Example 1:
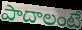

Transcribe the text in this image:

పాదాలంటే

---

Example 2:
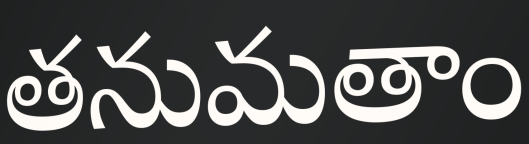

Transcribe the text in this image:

తనుమతాం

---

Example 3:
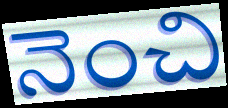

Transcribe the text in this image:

నెంచి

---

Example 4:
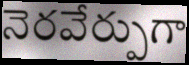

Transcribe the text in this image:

నెరవేర్పుగా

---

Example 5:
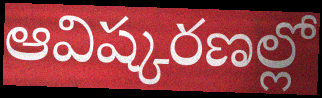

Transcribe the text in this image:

ఆవిష్కరణల్లో